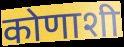
कोणाशी